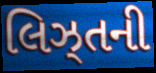
લિઝ્તની